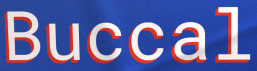
Buccal